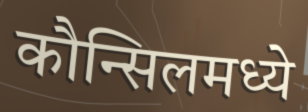
कौन्सिलमध्ये